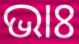
ଭାଃ